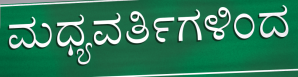
ಮಧ್ಯವರ್ತಿಗಳಿಂದ